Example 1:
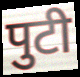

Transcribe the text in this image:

पुटी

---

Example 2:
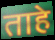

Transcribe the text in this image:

ताहे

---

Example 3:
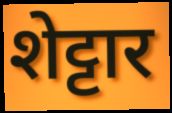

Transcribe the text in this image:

शेट्टार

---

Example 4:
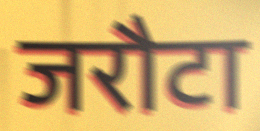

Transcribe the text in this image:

जरौटा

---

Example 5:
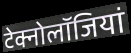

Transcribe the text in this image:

टेक्नोलॉजियां